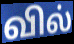
வில்